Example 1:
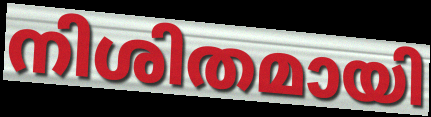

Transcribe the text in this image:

നിശിതമായി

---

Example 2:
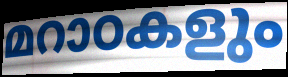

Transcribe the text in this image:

മറാഠകളും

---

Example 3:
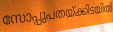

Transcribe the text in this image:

സോപ്പുപതയ്ക്കിടയിൽ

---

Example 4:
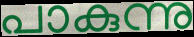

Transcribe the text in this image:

പാകുന്നു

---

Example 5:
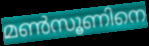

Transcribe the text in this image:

മൺസൂണിനെ